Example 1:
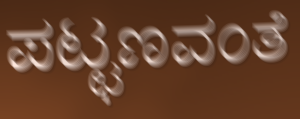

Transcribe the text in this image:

ಪಟ್ಟಣವಂತೆ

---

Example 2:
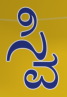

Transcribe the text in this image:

ಸ್ವಿ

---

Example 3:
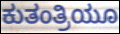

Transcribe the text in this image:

ಕುತಂತ್ರಿಯೂ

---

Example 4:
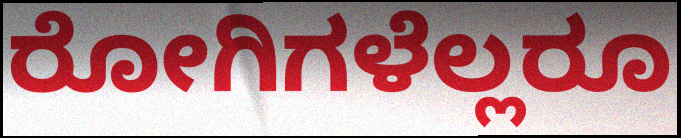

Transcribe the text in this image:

ರೋಗಿಗಳೆಲ್ಲರೂ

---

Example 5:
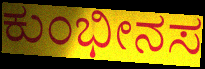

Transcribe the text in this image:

ಕುಂಭೀನಸ